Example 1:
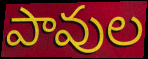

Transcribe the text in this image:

పావుల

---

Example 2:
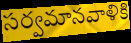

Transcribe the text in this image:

సర్వమానవాళికి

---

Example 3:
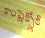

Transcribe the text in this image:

కాంప్లెక్స్లోకి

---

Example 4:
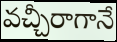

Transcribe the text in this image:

వచ్చీరాగానే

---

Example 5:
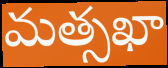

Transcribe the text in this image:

మత్సఖా